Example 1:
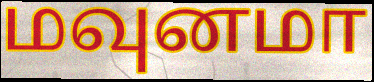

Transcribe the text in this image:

மவுனமா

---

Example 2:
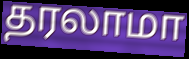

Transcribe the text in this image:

தரலாமா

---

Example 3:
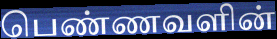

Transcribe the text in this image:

பெண்ணவளின்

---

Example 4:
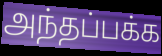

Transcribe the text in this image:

அந்தப்பக்க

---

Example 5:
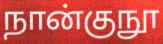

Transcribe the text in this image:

நான்குநூ